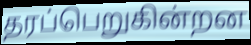
தரப்பெறுகின்றன